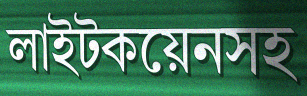
লাইটকয়েনসহ